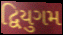
દ્વિયુગમ